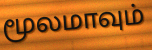
மூலமாவும்